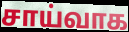
சாய்வாக